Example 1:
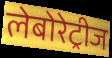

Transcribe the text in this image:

लेबोरेट्रीज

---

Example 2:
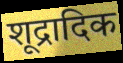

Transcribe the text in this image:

शूद्रादिक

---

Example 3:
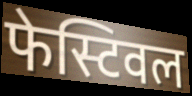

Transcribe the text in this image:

फेस्टिवल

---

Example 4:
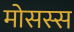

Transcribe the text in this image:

मोसस्स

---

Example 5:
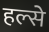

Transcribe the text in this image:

हल्से